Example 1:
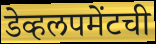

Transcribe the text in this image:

डेव्हलपमेंटची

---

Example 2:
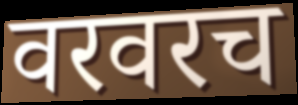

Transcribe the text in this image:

वरवरच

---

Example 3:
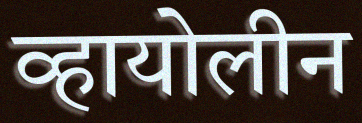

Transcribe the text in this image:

व्हायोलीन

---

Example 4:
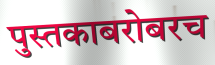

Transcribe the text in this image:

पुस्तकाबरोबरच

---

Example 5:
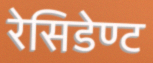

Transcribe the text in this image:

रेसिडेण्ट